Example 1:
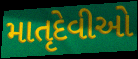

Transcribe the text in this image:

માતૃદેવીઓ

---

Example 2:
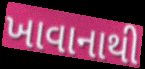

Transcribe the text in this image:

ખાવાનાથી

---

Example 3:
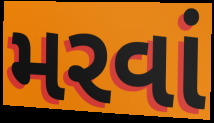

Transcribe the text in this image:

મરવાં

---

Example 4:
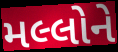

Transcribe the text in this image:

મલ્લોને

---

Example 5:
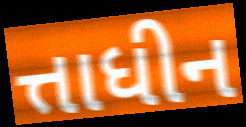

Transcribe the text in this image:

ત્તાધીન